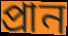
প্রান